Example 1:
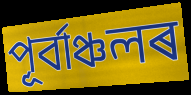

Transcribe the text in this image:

পূৰ্বাঞ্চলৰ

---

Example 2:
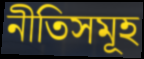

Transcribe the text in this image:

নীতিসমূহ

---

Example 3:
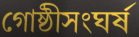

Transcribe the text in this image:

গোষ্ঠীসংঘৰ্ষ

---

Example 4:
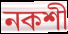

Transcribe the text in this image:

নকশী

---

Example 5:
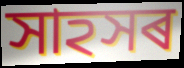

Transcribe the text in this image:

সাহসৰ